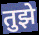
तुझे